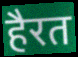
हैरत